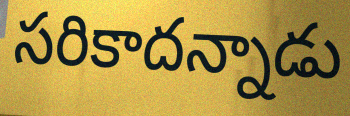
సరికాదన్నాడు